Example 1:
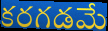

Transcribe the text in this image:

కరగడమే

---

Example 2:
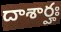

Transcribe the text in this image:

దాశార్హః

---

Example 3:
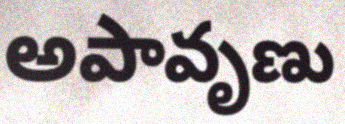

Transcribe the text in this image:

అపావృణు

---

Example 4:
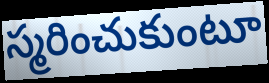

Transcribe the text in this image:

స్మరించుకుంటూ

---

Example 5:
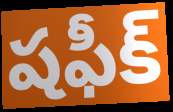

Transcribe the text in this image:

షఫీక్